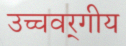
उच्चवर्गीय